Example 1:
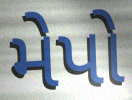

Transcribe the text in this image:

મેપો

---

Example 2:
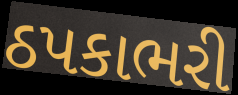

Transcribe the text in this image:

ઠપકાભરી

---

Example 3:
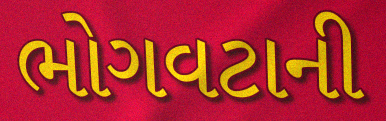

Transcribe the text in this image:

ભોગવટાની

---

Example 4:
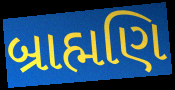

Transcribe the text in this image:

બ્રાહ્મણિ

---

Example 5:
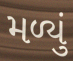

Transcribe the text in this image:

મળ્યું